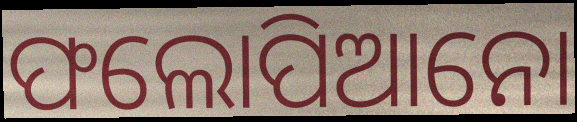
ଫଲୋପିଆନୋ